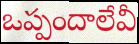
ఒప్పందాలేవీ